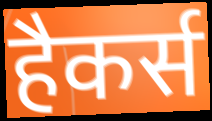
हैकर्स